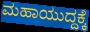
ಮಹಾಯುದ್ದಕ್ಕೆ